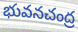
భువనచంద్ర